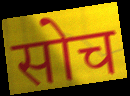
सोच